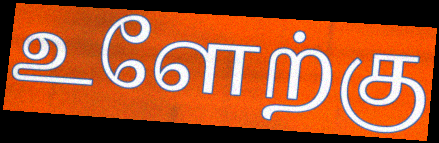
உளேற்கு